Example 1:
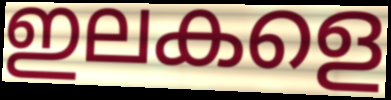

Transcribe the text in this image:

ഇലകളെ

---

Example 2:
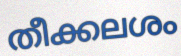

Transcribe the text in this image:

തീക്കലശം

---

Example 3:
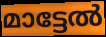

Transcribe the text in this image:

മാട്ടേൽ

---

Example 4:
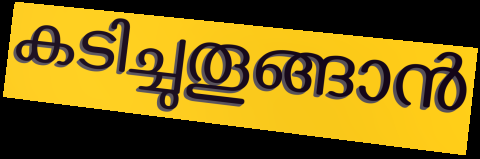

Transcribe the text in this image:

കടിച്ചുതൂങ്ങാൻ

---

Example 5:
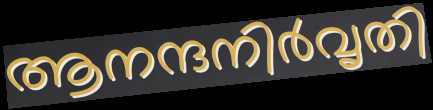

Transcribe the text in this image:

ആനന്ദനിർവൃതി